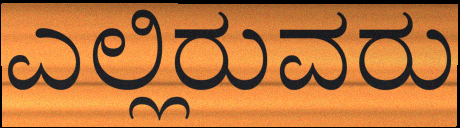
ಎಲ್ಲಿರುವರು